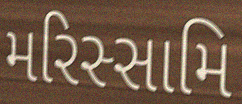
મરિસ્સામિ